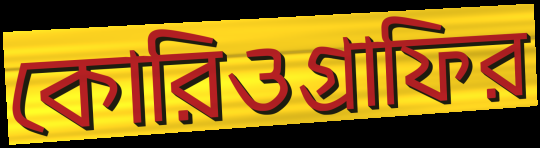
কোরিওগ্রাফির